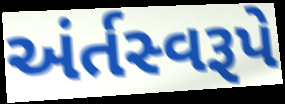
અંર્તસ્વરૂપે